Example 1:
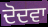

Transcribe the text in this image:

ਦੋਦਵਾ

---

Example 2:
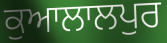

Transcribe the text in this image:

ਕੁਆਲਾਲਪੁਰ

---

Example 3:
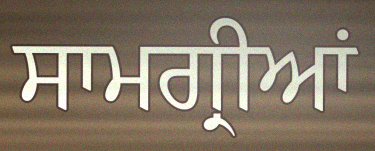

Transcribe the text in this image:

ਸਾਮਗ੍ਰੀਆਂ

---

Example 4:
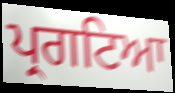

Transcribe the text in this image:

ਪ੍ਰਗਟਿਆ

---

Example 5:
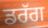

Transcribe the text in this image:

ਡਰੱਗ